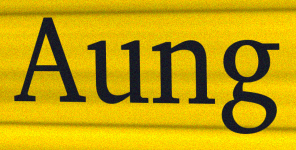
Aung